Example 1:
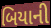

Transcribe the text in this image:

બિયાની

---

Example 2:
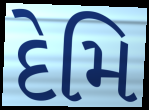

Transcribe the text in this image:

દેમિ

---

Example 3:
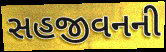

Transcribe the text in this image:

સહજીવનની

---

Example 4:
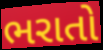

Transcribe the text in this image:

ભરાતો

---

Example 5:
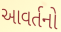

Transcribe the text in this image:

આવર્તનો